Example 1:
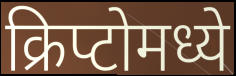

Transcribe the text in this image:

क्रिप्टोमध्ये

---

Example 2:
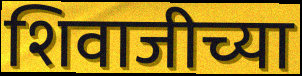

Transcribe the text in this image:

शिवाजीच्या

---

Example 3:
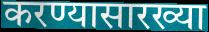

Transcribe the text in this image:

करण्यासारख्या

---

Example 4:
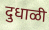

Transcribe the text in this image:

दुधाळी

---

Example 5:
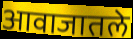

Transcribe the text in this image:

आवाजातले